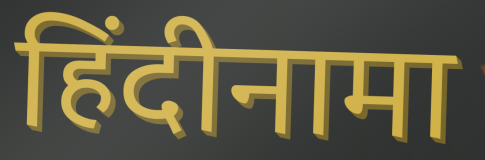
हिंदीनामा